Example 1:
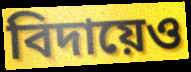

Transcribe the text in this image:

বিদায়েও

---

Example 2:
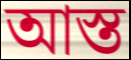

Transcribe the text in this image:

আস্ত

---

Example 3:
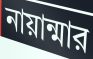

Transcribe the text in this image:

নায়ান্মার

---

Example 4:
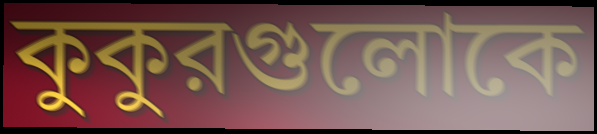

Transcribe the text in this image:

কুকুরগুলোকে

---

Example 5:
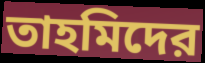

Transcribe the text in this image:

তাহমিদের